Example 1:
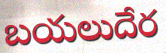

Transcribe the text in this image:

బయలుదేర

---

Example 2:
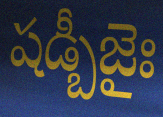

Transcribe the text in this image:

షడ్బీజైః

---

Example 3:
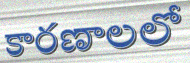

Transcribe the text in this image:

కారణాలలో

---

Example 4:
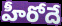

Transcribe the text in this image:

హీరోదే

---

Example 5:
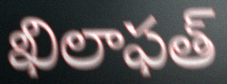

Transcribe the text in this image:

ఖిలాఫత్